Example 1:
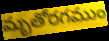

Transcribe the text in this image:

మృతోరగముం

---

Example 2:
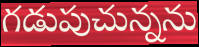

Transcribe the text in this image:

గడుపుచున్నను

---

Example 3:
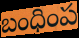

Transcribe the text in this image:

బంధింప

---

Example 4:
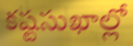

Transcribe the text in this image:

కష్టసుఖాల్లో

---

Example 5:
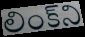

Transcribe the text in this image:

లింక్‌ని